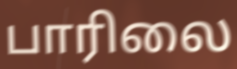
பாரிலை